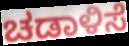
ಚಡಾಳಿಸೆ